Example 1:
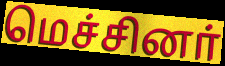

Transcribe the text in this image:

மெச்சினர்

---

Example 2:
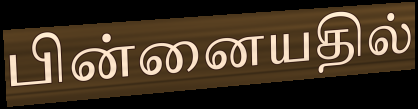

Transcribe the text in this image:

பின்னையதில்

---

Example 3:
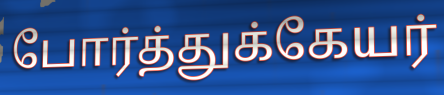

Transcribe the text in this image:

போர்த்துக்கேயர்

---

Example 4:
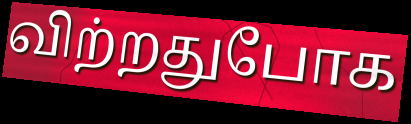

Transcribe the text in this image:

விற்றதுபோக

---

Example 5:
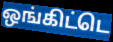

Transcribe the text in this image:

ஒங்கிட்டெ